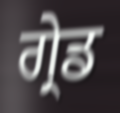
ਗ੍ਰੇਡ